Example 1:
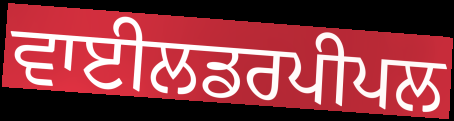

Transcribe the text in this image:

ਵਾਈਲਡਰਪੀਪਲ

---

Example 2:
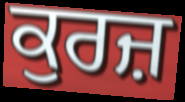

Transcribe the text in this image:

ਕੁਰਜ਼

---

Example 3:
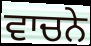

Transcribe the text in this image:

ਵਾਚਨੇ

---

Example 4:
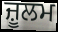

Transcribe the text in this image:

ਜ਼ੂਲਮ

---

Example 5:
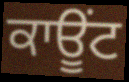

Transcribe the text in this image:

ਕਾਊਂਟ